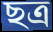
ছত্র